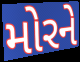
મોરને